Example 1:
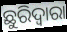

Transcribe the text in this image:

ଛୁରିଦ୍ୱାରା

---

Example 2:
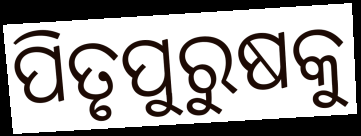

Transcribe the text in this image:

ପିତୃପୁରୁଷକୁ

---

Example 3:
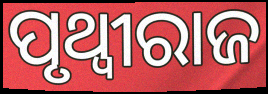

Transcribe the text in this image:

ପୃଥ୍ବୀରାଜ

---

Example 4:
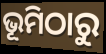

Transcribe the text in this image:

ଭୂମିଠାରୁ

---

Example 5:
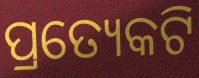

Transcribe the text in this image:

ପ୍ରତ୍ୟେକଟି